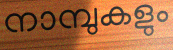
നാമ്പുകളും